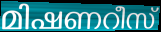
മിഷണറീസ്